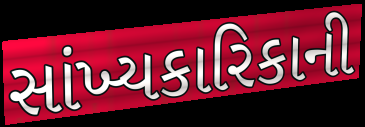
સાંખ્યકારિકાની